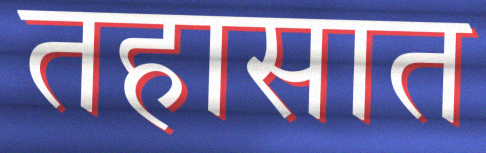
तहासात